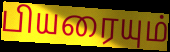
பியரையும்